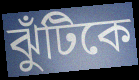
ঝুঁটিকে